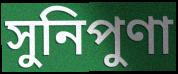
সুনিপুণা